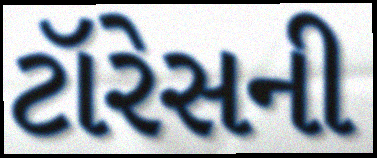
ટૉરેસની